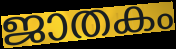
ജാതകം